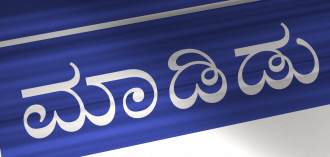
ಮಾಡಿಡು